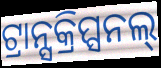
ଟ୍ରାନ୍ସକ୍ରିପ୍ସନଲ୍